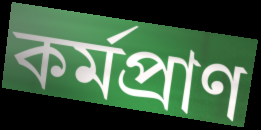
কর্মপ্রাণ